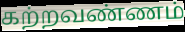
கற்றவண்ணம்